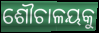
ଶୌଚାଳୟକୁ